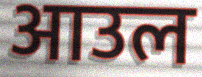
आउल